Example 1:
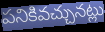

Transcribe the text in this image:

పనికివచ్చునట్లు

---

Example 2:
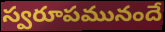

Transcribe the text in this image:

స్వరూపమునందే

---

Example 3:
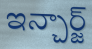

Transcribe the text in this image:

ఇన్చార్జ్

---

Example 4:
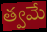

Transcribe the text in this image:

త్వమే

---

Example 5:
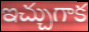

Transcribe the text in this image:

ఇచ్చుగాక